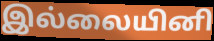
இல்லையினி